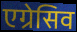
एग्रेसिव